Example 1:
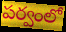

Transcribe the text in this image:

పర్వంలో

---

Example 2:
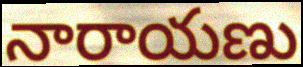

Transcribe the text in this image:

నారాయణు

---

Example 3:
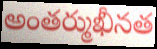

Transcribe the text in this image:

అంతర్ముఖీనత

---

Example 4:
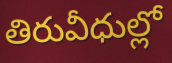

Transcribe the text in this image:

తిరువీధుల్లో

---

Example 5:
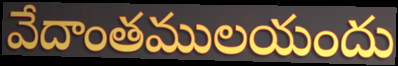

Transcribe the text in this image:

వేదాంతములయందు